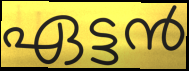
ഏട്ടൻ